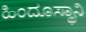
ಹಿಂದೂಸ್ಥಾನಿ